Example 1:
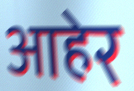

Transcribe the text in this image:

आहेर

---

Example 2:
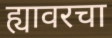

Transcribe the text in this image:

ह्यावरचा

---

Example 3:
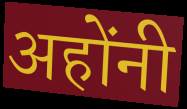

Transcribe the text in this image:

अहोंनी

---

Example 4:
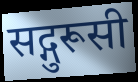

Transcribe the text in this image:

सद्गुरूसी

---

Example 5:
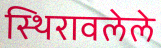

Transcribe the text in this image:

स्थिरावलेले